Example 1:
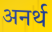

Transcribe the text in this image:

अनर्थ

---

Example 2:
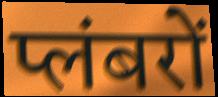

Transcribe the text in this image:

प्लंबरों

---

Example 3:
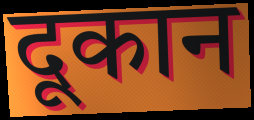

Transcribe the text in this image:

दूकान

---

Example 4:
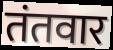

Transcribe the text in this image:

तंतवार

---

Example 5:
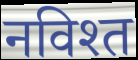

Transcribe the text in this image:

नविश्त